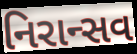
નિરાન્સવ